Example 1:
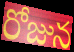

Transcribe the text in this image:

రోజున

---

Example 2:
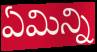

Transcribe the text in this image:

ఏమిన్ని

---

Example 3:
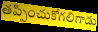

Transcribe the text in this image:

తప్పించుకోగలిగాడు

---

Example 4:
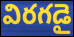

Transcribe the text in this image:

విరగడై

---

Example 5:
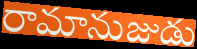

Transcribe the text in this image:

రామానుజుడు